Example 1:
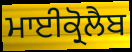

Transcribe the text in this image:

ਮਾਈਕ੍ਰੋਲੈਬ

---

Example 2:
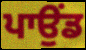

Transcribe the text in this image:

ਪਾਉਂਡ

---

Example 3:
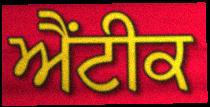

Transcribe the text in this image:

ਐਂਟੀਕ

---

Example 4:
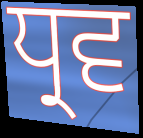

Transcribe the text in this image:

ਧ੍ਰਵ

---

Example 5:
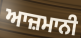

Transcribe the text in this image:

ਆਜ਼ਮਾਨੀ